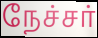
நேச்சர்